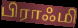
பிராஃமி